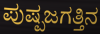
ಪುಷ್ಪಜಗತ್ತಿನ